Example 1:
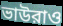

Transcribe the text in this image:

ভাউরাও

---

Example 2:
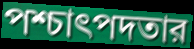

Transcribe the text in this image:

পশ্চাৎপদতার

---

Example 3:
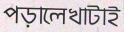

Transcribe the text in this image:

পড়ালেখাটাই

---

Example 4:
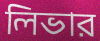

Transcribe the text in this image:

লিভার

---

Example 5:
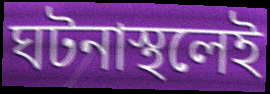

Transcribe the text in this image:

ঘটনাস্থলেই